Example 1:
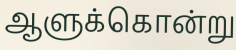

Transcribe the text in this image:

ஆளுக்கொன்று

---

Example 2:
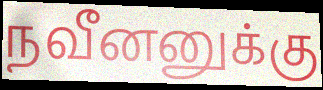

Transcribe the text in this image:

நவீனனுக்கு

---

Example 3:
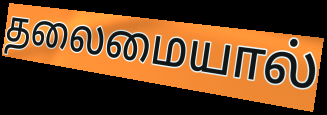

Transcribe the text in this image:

தலைமையால்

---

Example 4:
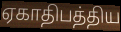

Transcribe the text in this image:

ஏகாதிபத்திய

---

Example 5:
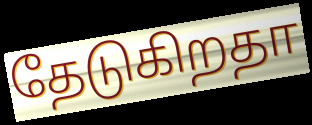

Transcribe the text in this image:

தேடுகிறதா